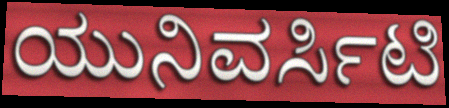
ಯುನಿವರ್ಸಿಟಿ